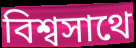
বিশ্বসাথে